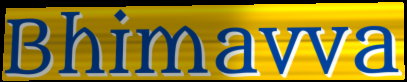
Bhimavva